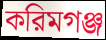
করিমগঞ্জ